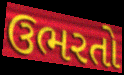
ઉભરતો